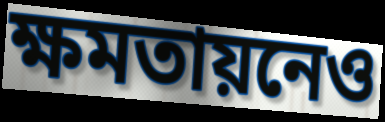
ক্ষমতায়নেও